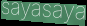
sayasaya